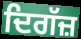
ਦਿਗੱਜ਼